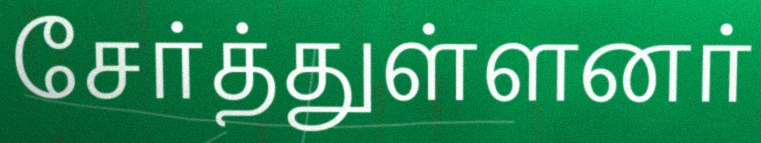
சேர்த்துள்ளனர்